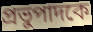
প্রভুপাদকে